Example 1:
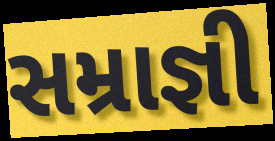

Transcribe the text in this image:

સમ્રાજ્ઞી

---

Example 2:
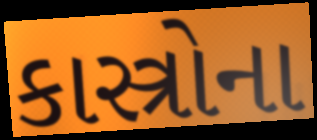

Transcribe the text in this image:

કાસ્ત્રોના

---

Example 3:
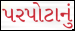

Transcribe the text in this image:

પરપોટાનું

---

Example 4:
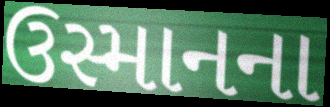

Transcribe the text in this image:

ઉસ્માનના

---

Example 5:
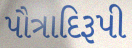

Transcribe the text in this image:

પૌત્રાદિરૂપી